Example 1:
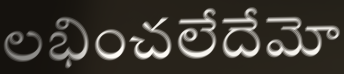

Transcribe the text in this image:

లభించలేదేమో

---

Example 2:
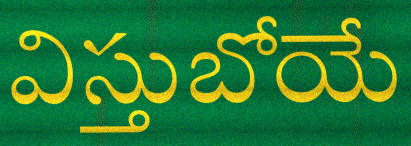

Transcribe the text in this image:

విస్తుబోయే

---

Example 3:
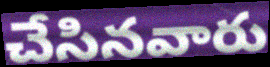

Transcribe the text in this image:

చేసినవారు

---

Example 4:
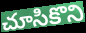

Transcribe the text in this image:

చూసికొని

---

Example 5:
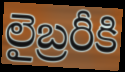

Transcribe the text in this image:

లైబ్రరీకి